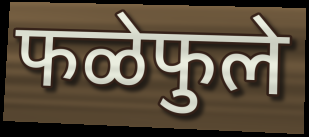
फळेफुले